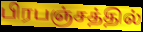
பிரபஞ்சத்தில்